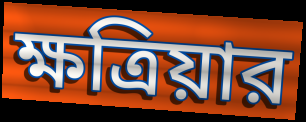
ক্ষত্রিয়ার